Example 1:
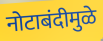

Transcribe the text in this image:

नोटाबंदीमुळे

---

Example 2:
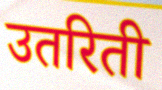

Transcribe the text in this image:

उतरिती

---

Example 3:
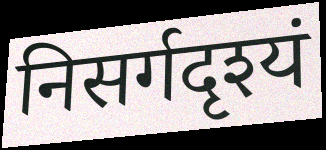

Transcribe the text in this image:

निसर्गदृश्यं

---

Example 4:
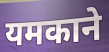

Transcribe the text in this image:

यमकाने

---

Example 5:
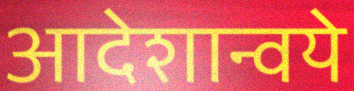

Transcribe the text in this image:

आदेशान्वये